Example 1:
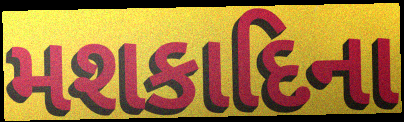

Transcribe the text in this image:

મશકાદિના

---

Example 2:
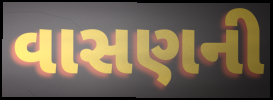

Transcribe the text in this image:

વાસણની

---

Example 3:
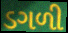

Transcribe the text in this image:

ડગળી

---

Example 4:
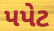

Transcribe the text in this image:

પપેટ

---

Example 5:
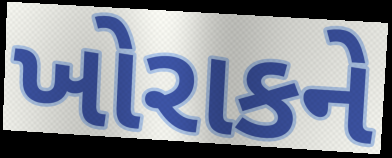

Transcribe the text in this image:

ખોરાકને